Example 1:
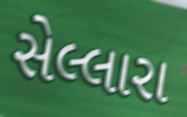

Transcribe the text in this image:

સેલ્લારા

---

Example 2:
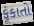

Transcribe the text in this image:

ફૂંકાતો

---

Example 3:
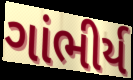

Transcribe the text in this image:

ગાંભીર્ય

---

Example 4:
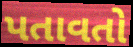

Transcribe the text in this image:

પતાવતો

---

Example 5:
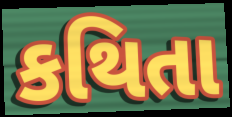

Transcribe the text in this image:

કથિતા